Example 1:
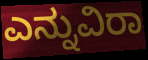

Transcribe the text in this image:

ಎನ್ನುವಿರಾ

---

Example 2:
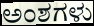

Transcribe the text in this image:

ಅಂಶಗಳು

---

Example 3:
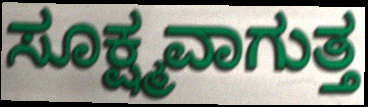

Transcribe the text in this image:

ಸೂಕ್ಷ್ಮವಾಗುತ್ತ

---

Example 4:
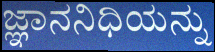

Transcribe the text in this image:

ಜ್ಞಾನನಿಧಿಯನ್ನು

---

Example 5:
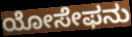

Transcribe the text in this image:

ಯೋಸೇಫನು